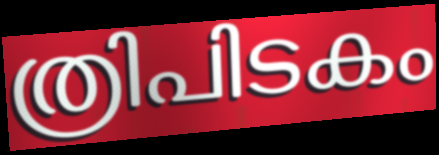
ത്രിപിടകം